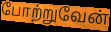
போற்றுவேன்